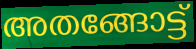
അതങ്ങോട്ട്